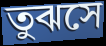
তুঝসে